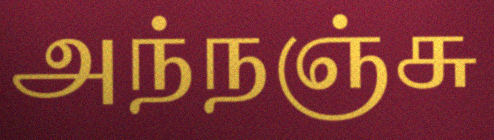
அந்நஞ்சு